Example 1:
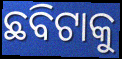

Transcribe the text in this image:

ଛବିଟାକୁ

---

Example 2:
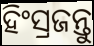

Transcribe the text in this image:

ହିଂସ୍ରଜନ୍ତୁ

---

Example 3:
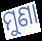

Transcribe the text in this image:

ମୁଣା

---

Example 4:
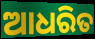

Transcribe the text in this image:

ଆଧରିତ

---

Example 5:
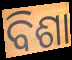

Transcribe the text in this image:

ବିଶା